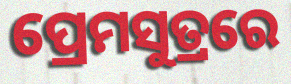
ପ୍ରେମସୁତ୍ରରେ